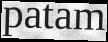
patam